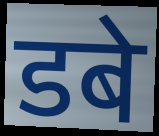
डबे